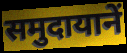
समुदायानें